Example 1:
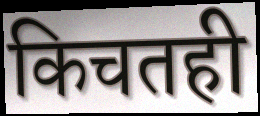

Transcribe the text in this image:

किचतही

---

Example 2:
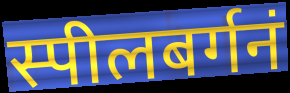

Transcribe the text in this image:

स्पीलबर्गनं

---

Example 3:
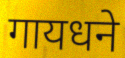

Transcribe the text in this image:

गायधने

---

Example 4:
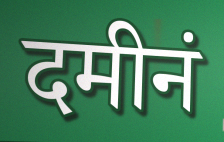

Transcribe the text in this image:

दमीनं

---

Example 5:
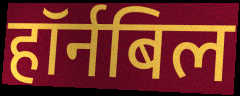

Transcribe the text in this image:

हॉर्नबिल